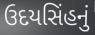
ઉદયસિંહનું